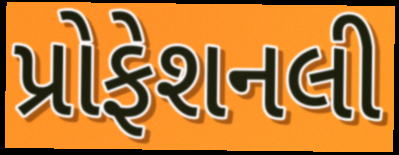
પ્રોફેશનલી